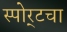
स्पोर्टचा